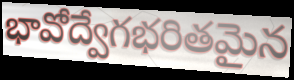
భావోద్వేగభరితమైన